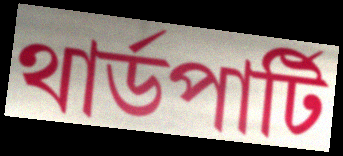
থার্ডপার্টি